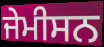
ਜੇਮੀਸਨ